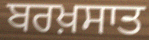
ਬਰਖ਼ਸਾਤ